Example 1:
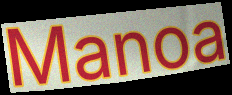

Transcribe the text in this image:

Manoa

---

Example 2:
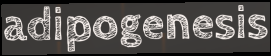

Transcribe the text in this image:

adipogenesis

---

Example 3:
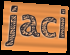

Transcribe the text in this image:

jaci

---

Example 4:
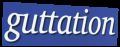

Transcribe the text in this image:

guttation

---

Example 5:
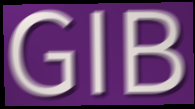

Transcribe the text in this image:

GIB